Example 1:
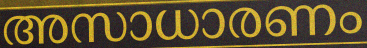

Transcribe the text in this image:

അസാധാരണം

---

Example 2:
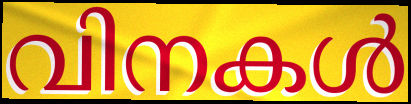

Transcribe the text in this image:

വിനകൾ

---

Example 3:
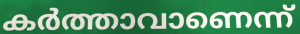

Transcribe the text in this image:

കർത്താവാണെന്ന്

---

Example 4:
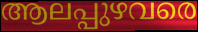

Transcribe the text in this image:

ആലപ്പുഴവരെ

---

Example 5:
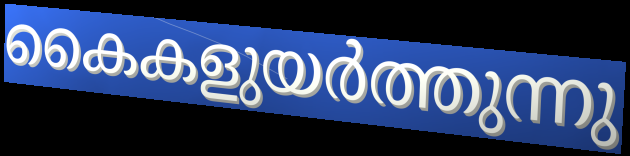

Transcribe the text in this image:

കൈകളുയർത്തുന്നു